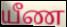
யீண